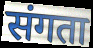
संगता